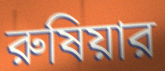
রুষিয়ার